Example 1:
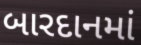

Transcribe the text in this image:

બારદાનમાં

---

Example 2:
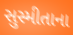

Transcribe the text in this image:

સુસ્મીતાના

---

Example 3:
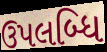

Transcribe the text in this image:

ઉપલબ્ધિ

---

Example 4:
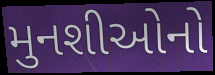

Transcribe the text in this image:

મુનશીઓનો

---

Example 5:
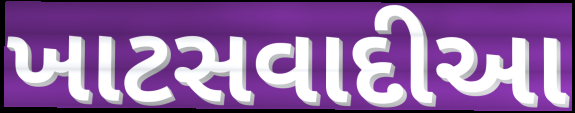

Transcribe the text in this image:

ખાટસવાદીઆ